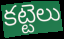
కట్టెలు